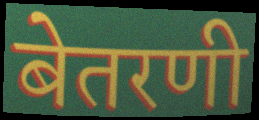
बेतरणी